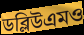
ডব্লিউএমও